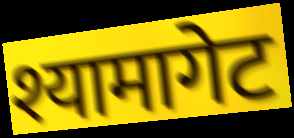
श्यामागेट